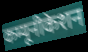
कम्यूनीकेशन